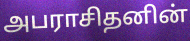
அபராசிதனின்